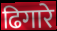
ढिगारे